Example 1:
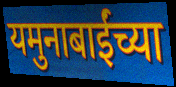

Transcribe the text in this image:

यमुनाबाईंच्या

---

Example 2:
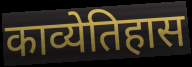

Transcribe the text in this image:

काव्येतिहास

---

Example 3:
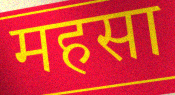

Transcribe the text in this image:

महसा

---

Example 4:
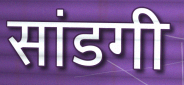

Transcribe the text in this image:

सांडगी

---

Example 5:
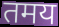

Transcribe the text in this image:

तमय